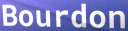
Bourdon